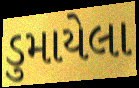
ડુમાયેલા